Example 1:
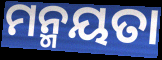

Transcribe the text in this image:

ମନ୍ମୟତା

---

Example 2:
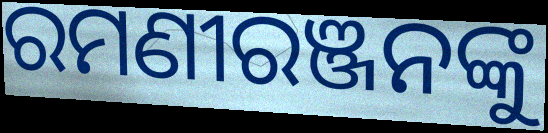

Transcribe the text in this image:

ରମଣୀରଞ୍ଜନଙ୍କୁ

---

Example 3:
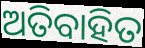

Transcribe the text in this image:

ଅତିବାହିତ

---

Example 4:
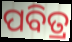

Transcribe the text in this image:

ପବିତ୍ର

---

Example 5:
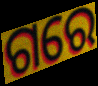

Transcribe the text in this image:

ଗରେ